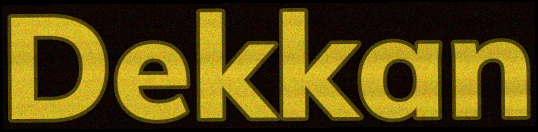
Dekkan